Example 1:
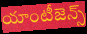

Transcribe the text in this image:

యాంటీజెన్స్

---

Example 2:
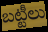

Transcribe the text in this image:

బట్టీలు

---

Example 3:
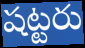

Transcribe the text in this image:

షట్టరు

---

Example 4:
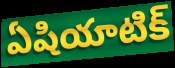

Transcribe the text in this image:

ఏషియాటిక్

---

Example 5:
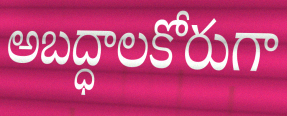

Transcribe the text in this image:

అబద్ధాలకోరుగా